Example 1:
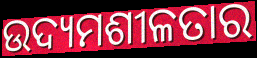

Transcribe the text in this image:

ଉଦ୍ୟମଶୀଳତାର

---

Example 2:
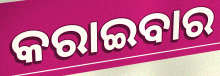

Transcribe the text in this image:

କରାଇବାର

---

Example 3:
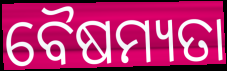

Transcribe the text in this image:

ବୈଷମ୍ୟତା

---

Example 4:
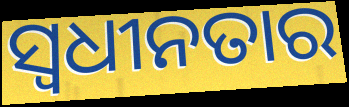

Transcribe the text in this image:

ସ୍ବଧୀନତାର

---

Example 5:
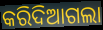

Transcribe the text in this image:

କରିଦିଆଗଲା